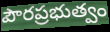
పౌరప్రభుత్వం